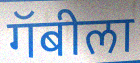
गॅबीला